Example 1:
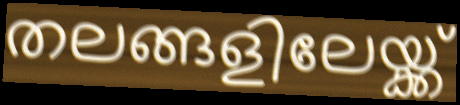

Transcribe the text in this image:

തലങ്ങളിലേയ്ക്ക്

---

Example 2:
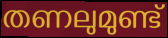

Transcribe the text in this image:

തണലുമുണ്ട്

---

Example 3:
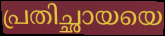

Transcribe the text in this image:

പ്രതിച്ഛായയെ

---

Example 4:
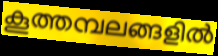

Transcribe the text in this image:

കൂത്തമ്പലങ്ങളിൽ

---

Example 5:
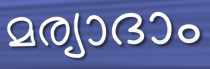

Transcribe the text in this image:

മര്യാദാം